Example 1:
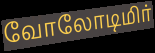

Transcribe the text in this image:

வோலோடிமிர்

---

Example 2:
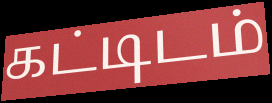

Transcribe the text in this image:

கட்டிடம்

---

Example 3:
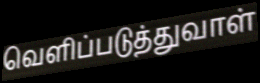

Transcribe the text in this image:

வெளிப்படுத்துவாள்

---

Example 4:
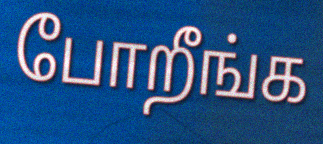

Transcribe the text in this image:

போறீங்க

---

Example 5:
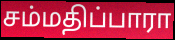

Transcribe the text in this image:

சம்மதிப்பாரா